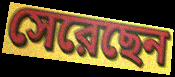
সেরেছেন